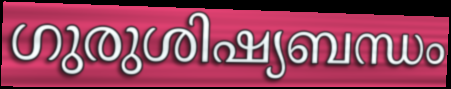
ഗുരുശിഷ്യബന്ധം